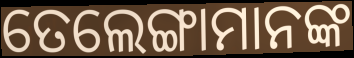
ତେଲେଙ୍ଗାମାନଙ୍କ